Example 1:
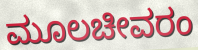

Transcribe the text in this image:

ಮೂಲಚೀವರಂ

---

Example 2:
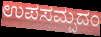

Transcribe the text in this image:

ಉಪಸಮ್ಪದಂ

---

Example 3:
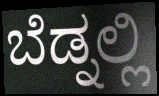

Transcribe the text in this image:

ಬೆಡ್ನಲ್ಲಿ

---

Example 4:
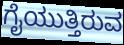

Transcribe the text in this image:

ಗೈಯುತ್ತಿರುವ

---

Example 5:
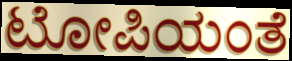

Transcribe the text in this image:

ಟೋಪಿಯಂತೆ